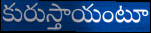
కురుస్తాయంటూ